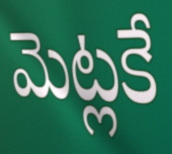
మెట్లకే